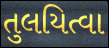
તુલયિત્વા